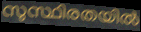
സുസ്ഥിരതയിൽ